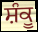
ਸ਼ੰਕੂ